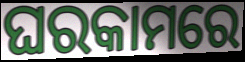
ଘରକାମରେ